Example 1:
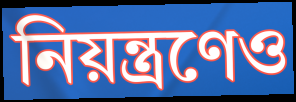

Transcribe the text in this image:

নিয়ন্ত্রণেও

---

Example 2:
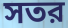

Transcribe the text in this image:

সতর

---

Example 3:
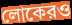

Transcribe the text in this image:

লোকেরও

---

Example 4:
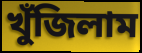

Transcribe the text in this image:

খুঁজিলাম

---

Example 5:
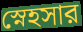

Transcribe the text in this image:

স্নেহসার